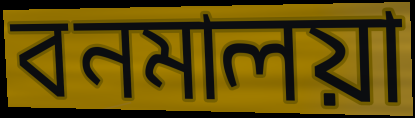
বনমালয়া